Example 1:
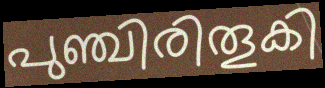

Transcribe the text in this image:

പുഞ്ചിരിതൂകി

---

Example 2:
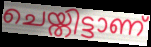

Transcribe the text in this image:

ചെയ്തിട്ടാണ്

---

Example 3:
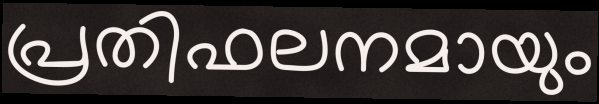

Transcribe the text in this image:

പ്രതിഫലനമായും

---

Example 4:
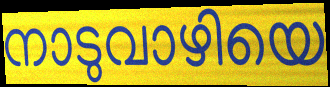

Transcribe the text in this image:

നാടുവാഴിയെ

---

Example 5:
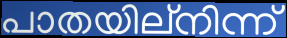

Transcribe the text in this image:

പാതയില്നിന്ന്